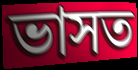
ভাসত